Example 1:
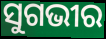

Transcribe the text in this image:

ସୁଗଭୀର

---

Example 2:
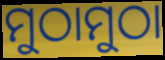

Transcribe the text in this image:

ମୁଠାମୁଠା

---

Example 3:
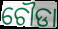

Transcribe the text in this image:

ଚୌଡା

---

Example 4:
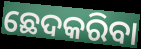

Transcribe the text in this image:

ଛେଦକରିବା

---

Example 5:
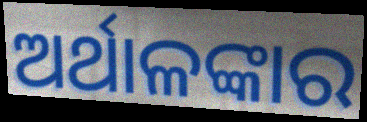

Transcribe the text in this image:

ଅର୍ଥାଳଙ୍କାର